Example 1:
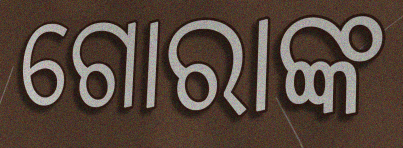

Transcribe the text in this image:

ଗୋରାଙ୍କ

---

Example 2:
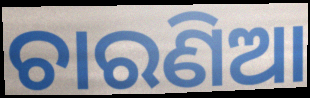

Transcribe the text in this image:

ଚାରଣିଆ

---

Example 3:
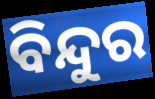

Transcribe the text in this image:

ବିନ୍ଦୁର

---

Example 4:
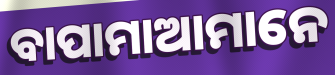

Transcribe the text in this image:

ବାପାମାଆମାନେ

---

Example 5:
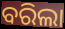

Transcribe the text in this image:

ବରିଲା